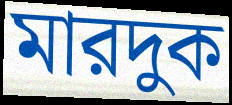
মারদুক